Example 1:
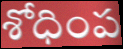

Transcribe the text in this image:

శోధింప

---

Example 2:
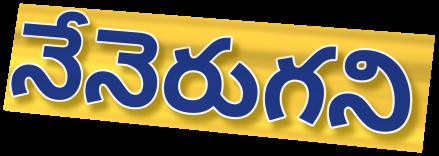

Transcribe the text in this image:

నేనెరుగని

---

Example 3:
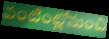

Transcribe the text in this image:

వంటింట్లోనుంచి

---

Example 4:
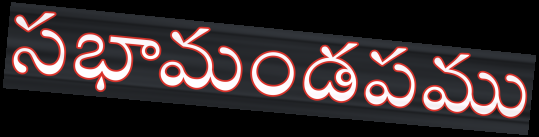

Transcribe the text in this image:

సభామండపము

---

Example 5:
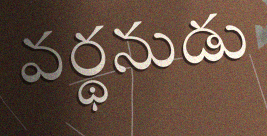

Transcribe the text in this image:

వర్థనుడు